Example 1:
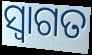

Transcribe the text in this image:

ସ୍ୱାଗତ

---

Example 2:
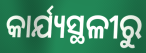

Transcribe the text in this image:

କାର୍ଯ୍ୟସ୍ଥଳୀରୁ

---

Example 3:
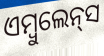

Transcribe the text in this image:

ଏମ୍ବୁଲେନ୍‌ସ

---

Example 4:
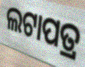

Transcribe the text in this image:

ଲଟାପତ୍ର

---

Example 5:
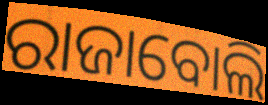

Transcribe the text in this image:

ରାଜାବୋଲି